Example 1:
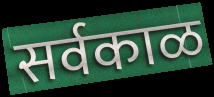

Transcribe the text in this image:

सर्वकाळ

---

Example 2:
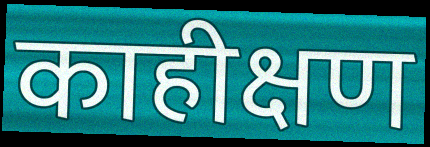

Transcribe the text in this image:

काहीक्षण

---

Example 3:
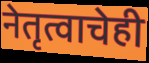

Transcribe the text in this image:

नेतृत्वाचेही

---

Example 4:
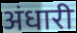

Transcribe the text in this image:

अंधारी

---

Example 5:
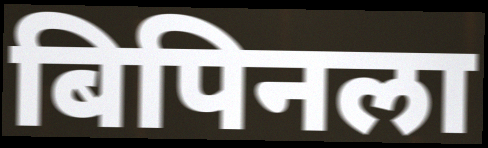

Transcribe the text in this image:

बिपिनला